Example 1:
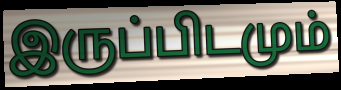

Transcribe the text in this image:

இருப்பிடமும்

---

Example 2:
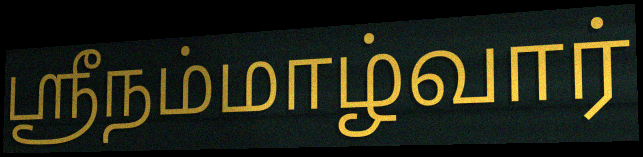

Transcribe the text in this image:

ஸ்ரீநம்மாழ்வார்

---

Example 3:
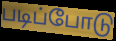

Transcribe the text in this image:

படிப்போடு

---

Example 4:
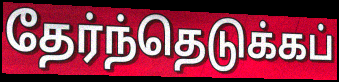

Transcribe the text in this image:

தேர்ந்தெடுக்கப்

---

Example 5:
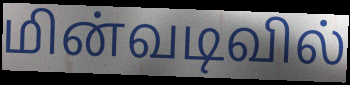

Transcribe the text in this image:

மின்வடிவில்